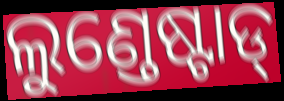
ଲୁଣ୍ଡେଷ୍ଟାଡ୍